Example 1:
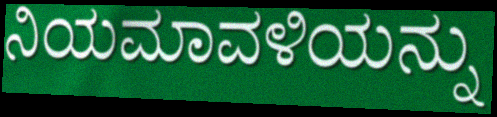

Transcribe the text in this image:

ನಿಯಮಾವಳಿಯನ್ನು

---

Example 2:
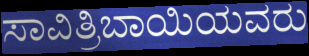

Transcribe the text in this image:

ಸಾವಿತ್ರಿಬಾಯಿಯವರು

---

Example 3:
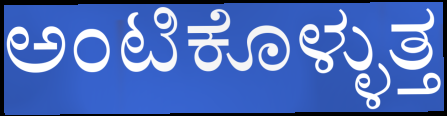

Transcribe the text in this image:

ಅಂಟಿಕೊಳ್ಳುತ್ತ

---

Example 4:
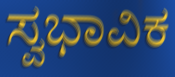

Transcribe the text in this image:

ಸ್ವಭಾವಿಕ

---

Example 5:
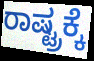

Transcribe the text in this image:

ರಾಷ್ಟ್ರಕ್ಕೆ